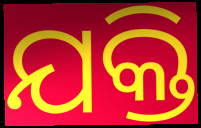
ଯକ୍ତି